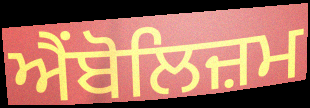
ਐਂਬੋਲਿਜ਼ਮ